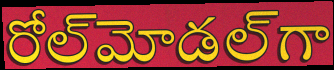
రోల్‌మోడల్‌గా